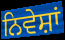
ਨਿਵੇਸ਼ਾਂ